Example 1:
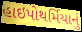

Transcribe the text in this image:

હાઇપોથર્મિયાનું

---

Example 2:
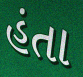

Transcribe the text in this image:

હંતા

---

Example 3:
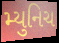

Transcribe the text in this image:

મ્યુનિચ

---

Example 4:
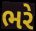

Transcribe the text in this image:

ભરે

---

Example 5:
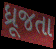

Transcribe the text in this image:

ધ્રૂજતા